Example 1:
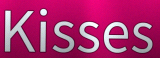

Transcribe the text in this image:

Kisses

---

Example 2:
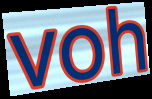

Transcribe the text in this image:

voh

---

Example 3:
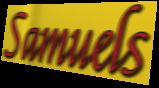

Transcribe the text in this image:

Samuels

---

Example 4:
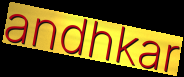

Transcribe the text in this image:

andhkar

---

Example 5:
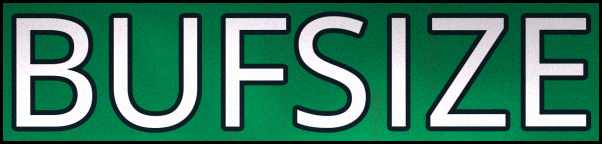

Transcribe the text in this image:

BUFSIZE